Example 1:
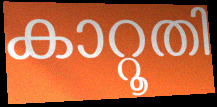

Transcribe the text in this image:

കാറ്റൂതി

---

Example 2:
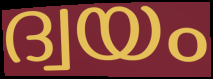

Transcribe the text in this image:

ദ്വയം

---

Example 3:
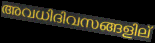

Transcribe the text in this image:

അവധിദിവസങ്ങളില്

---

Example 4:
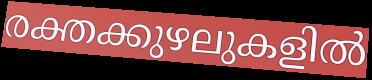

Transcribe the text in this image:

രക്തക്കുഴലുകളിൽ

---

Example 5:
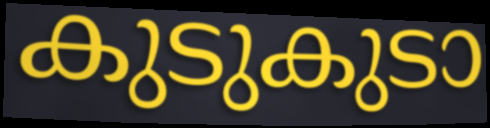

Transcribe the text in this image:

കുടുകുടാ